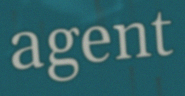
agent